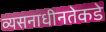
व्यसनाधीनतेकडे